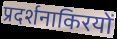
प्रदर्शनाकिरयों